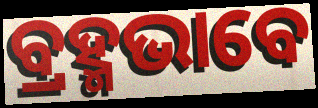
ବ୍ରହ୍ମଭାବେ